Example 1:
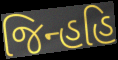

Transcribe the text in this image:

જિન્હહિ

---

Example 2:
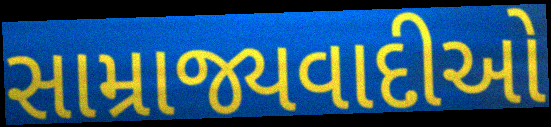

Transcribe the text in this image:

સામ્રાજ્યવાદીઓ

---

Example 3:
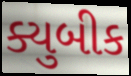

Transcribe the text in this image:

ક્યુબીક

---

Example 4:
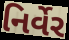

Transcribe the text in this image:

નિર્વેર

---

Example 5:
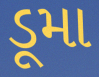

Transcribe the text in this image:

ડૂમા